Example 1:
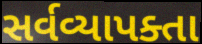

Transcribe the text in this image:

સર્વવ્યાપક્તા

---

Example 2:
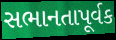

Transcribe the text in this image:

સભાનતાપૂર્વક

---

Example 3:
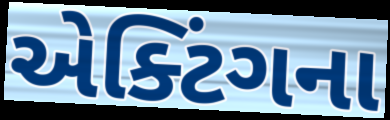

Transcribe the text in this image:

એક્ટિંગના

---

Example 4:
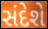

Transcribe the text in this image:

સંદેશે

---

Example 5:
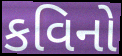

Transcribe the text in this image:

કવિનો